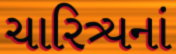
ચારિત્ર્યનાં